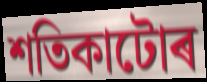
শতিকাটোৰ